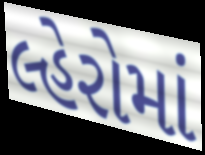
લ્હેરોમાં